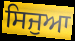
ਸਿਜੁਆ